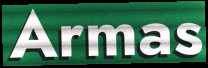
Armas